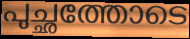
പുച്ഛത്തോടെ